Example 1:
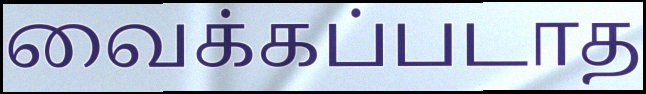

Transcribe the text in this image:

வைக்கப்படாத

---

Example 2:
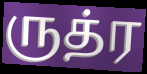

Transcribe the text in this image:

ருத்ர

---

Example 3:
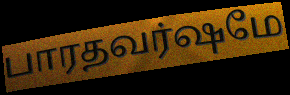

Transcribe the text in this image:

பாரதவர்ஷமே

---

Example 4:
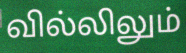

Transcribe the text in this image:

வில்லிலும்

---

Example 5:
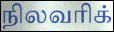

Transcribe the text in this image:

நிலவரிக்